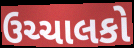
ઉચ્ચાલકો